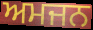
ਅਮਜਨ